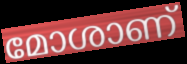
മോശാണ്